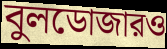
বুলডোজারও